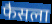
फैसला